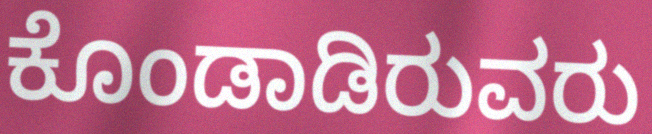
ಕೊಂಡಾಡಿರುವರು